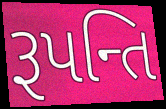
રૂપન્તિ